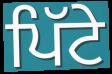
ਪਿੱਟੇ